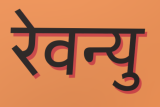
रेवन्यु